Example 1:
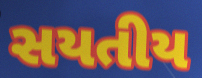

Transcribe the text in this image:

સયતીય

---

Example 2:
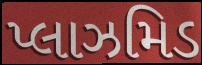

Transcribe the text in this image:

પ્લાઝમિડ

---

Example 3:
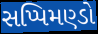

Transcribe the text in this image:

સપ્પિમણ્ડો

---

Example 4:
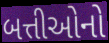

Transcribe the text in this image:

બત્તીઓનો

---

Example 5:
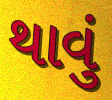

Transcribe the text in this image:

થાવું